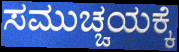
ಸಮುಚ್ಚಯಕ್ಕೆ